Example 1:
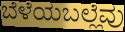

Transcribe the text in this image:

ಬೆಳೆಯಬಲ್ಲೆವು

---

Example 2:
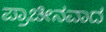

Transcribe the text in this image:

ಪ್ರಾಚೀನವಾದ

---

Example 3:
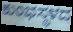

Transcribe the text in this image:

ಕುಂಭಸ್ಥಳದ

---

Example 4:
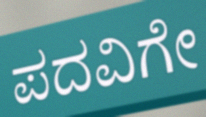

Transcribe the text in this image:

ಪದವಿಗೇ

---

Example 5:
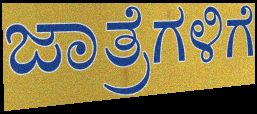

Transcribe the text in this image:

ಜಾತ್ರೆಗಳಿಗೆ